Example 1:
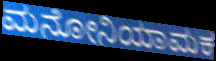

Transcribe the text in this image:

ಮನೋನಿಯಾಮಕ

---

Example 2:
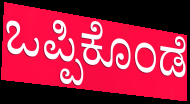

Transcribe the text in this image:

ಒಪ್ಪಿಕೊಂಡೆ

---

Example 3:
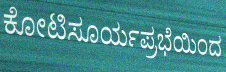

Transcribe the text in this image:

ಕೋಟಿಸೂರ್ಯಪ್ರಭೆಯಿಂದ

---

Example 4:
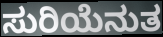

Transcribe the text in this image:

ಸುರಿಯೆನುತ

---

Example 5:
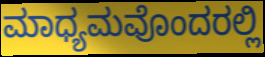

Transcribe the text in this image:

ಮಾಧ್ಯಮವೊಂದರಲ್ಲಿ